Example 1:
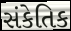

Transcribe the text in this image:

સંકેતિક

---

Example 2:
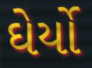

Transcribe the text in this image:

ઘેર્યો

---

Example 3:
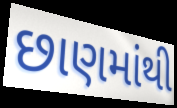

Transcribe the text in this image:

છાણમાંથી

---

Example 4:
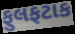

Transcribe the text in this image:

ફુલફટાક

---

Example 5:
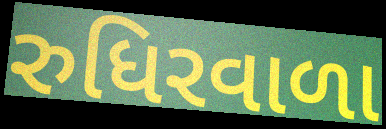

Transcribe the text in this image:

રુધિરવાળા